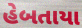
હેબતાયા